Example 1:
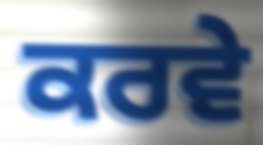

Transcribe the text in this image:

ਕਰਵੇ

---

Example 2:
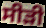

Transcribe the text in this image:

ਸੀੜੀ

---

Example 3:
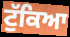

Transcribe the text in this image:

ਟੁੱਕਿਆ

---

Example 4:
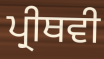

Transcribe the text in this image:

ਪ੍ਰੀਥਵੀ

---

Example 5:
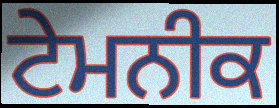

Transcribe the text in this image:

ਟੇਮਨੀਕ